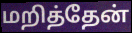
மறித்தேன்